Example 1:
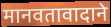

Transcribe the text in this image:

मानवतावादाने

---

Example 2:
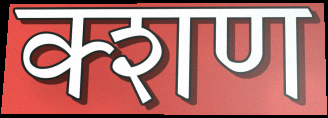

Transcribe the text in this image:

क्शण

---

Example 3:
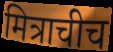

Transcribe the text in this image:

मित्राचीच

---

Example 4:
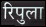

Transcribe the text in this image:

रिपुला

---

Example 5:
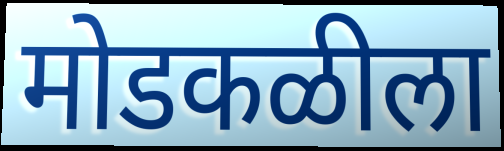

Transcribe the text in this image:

मोडकळीला